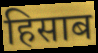
हिसाब